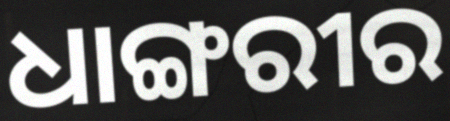
ଧାଙ୍ଗରୀର